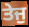
ਤੇਜੁ